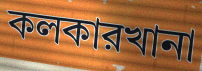
কলকারখানা